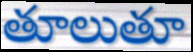
తూలుతూ